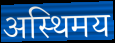
अस्थिमय